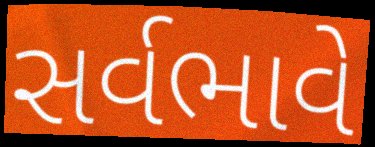
સર્વભાવે